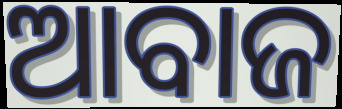
ଆବାଜ